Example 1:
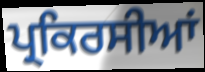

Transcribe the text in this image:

ਪ੍ਰਕਿਰਸੀਆਂ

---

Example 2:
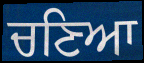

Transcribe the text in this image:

ਚਣਿਆ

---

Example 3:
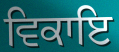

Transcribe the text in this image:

ਵਿਕਾਇ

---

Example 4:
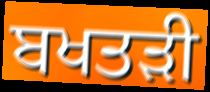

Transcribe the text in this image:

ਬਖਤੜੀ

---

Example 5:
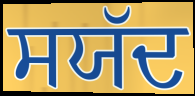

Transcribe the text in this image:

ਸਯੱਦ